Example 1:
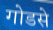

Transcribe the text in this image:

गोडसे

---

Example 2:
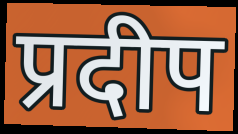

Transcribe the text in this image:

प्रदीप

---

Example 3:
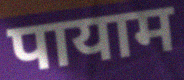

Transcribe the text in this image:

पायाम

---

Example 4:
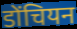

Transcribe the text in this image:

डोंचियन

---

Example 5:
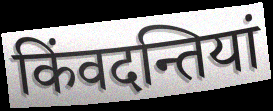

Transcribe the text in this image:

किंवदन्तियां